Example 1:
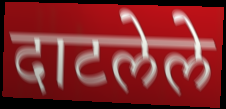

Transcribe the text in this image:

दाटलेले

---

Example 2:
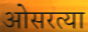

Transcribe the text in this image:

ओसरत्या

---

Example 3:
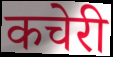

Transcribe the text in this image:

कचेरी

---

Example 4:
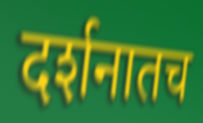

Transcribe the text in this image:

दर्शनातच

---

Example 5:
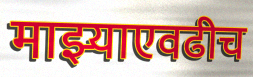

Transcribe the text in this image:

माझ्याएवढीच